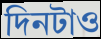
দিনটাও